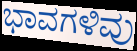
ಭಾವಗಳಿವು